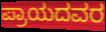
ಪ್ರಾಯದವರ